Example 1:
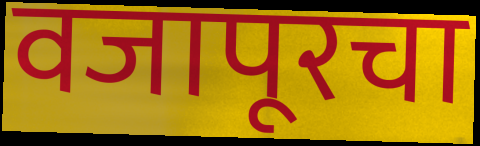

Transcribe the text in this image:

वजापूरचा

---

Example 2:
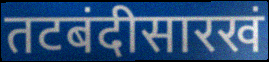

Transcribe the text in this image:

तटबंदीसारखं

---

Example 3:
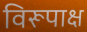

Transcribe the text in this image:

विरूपाक्ष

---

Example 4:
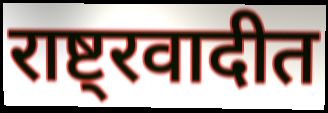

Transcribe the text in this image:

राष्ट्रवादीत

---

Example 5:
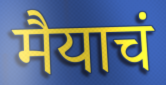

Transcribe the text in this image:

मैयाचं